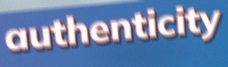
authenticity